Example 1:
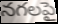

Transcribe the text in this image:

నగలపై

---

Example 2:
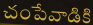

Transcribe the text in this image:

చంపేవాడికి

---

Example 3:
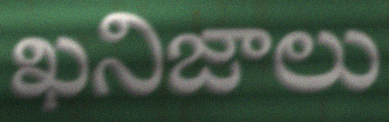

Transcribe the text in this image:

ఖనిజాలు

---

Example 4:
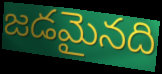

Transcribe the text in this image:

జడమైనది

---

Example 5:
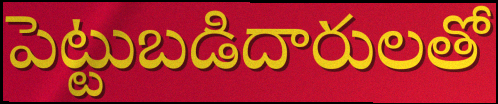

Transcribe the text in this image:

పెట్టుబడిదారులతో